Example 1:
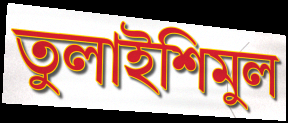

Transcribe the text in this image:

তুলাইশিমুল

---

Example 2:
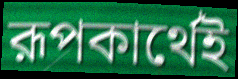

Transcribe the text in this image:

রূপকার্থেই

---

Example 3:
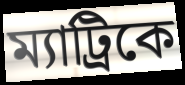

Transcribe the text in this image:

ম্যাট্রিকে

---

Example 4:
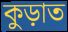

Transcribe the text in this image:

কুড়াত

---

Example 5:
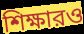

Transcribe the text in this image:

শিক্ষারও